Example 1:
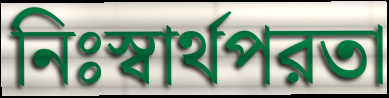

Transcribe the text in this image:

নিঃস্বার্থপরতা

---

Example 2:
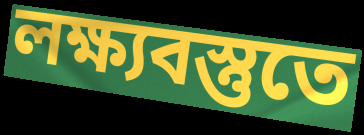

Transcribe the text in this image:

লক্ষ্যবস্তুতে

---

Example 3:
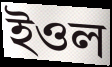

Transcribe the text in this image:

ইওল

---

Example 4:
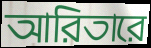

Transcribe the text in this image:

আরিতারে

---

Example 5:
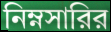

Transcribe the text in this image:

নিম্নসারির